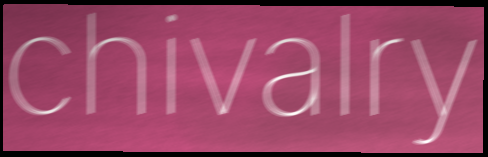
chivalry